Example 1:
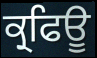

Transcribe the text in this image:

ਕ੍ਰਫਿਊ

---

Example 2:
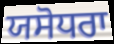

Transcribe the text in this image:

ਯਸੋਧਰਾ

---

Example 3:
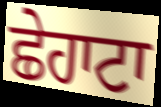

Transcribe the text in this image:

ਛੇਹਾਟਾ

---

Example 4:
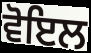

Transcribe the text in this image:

ਵੋਇਲ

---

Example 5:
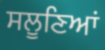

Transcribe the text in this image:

ਸਲੂਣਿਆਂ